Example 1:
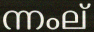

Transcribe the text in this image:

ന്നംല്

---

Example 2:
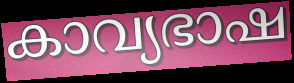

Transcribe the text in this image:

കാവ്യഭാഷ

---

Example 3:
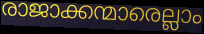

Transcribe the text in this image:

രാജാക്കന്മാരെല്ലാം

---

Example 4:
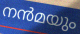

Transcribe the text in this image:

നൻമയും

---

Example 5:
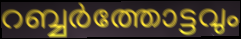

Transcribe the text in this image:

റബ്ബർത്തോട്ടവും